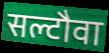
सल्टौवा